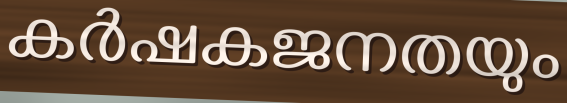
കർഷകജനതയും